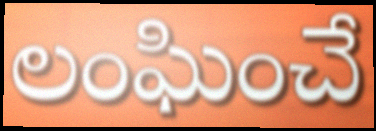
లంఘించే